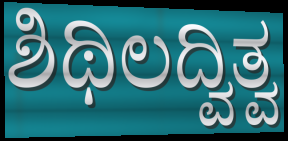
ಶಿಥಿಲದ್ವಿತ್ವ